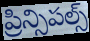
ప్రిన్సిపల్స్